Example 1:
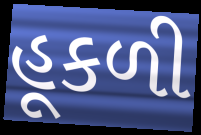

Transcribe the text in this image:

હૂકળી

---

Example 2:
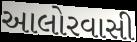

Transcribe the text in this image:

આલોરવાસી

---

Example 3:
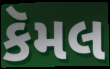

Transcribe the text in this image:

કૅમલ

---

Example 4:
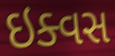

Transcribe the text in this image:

ઇક્વસ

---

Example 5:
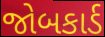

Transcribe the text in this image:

જોબકાર્ડ